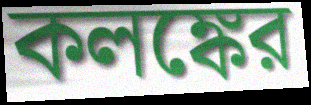
কলঙ্কের